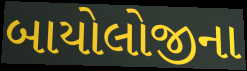
બાયોલોજીના